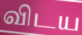
விடய